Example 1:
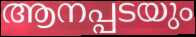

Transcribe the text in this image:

ആനപ്പടയും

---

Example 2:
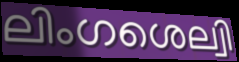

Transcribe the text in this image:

ലിംഗശെല്വി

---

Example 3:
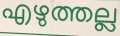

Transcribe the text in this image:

എഴുത്തല്ല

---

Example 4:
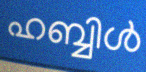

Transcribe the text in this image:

ഹബ്ബിൾ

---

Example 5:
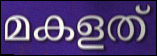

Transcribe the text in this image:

മകളത്